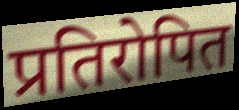
प्रतिरोपित